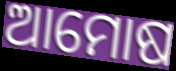
ଆମୋଷ